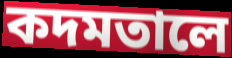
কদমতালে